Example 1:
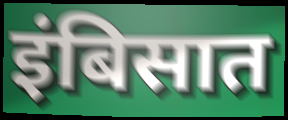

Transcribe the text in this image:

इंबिसात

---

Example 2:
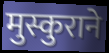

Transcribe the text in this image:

मुस्‍कुराने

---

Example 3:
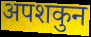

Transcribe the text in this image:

अपशकुन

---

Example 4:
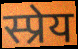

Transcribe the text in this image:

स्प्रेय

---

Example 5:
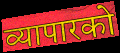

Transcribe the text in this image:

व्यापारको